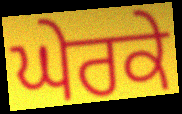
ਘੇਰਕੇ